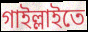
গাইল্লাইতে